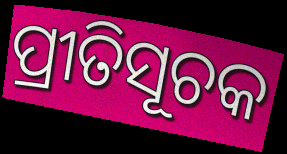
ପ୍ରୀତିସୂଚକ